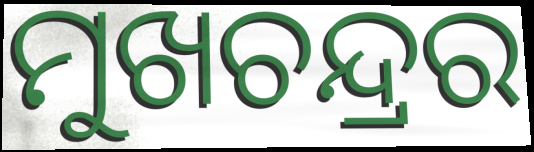
ମୁଖଚନ୍ଦ୍ରର